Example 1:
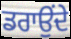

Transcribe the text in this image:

ਡਰਾਉਂਦੇ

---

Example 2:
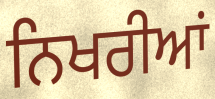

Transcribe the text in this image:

ਨਿਖਰੀਆਂ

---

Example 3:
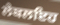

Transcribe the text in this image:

ਲੇਬਲਇਹ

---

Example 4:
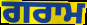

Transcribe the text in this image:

ਗਰਾਮ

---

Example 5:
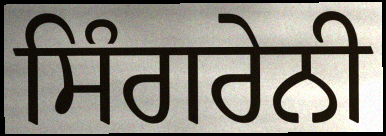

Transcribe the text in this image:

ਸਿੰਗਰੇਨੀ